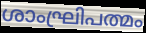
ശാംഘ്രിപത്മം